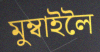
মুম্বাইলৈ